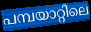
പമ്പയാറ്റിലെ